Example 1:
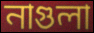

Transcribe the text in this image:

নাগুলা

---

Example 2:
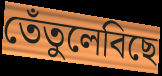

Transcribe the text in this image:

তেঁতুলেবিছে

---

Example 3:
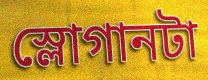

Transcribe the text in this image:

স্লোগানটা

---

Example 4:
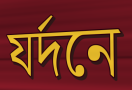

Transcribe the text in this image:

যর্দনে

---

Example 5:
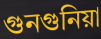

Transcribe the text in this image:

গুনগুনিয়া